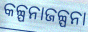
କଳ୍ପନାଜଳ୍ପନା